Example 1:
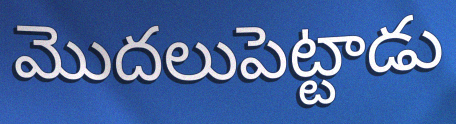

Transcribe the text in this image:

మొదలుపెట్టాడు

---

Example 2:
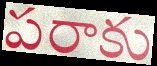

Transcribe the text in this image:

పరాకు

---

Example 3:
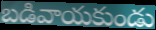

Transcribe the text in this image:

బడివాయకుండు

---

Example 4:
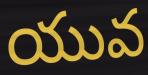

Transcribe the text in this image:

యువ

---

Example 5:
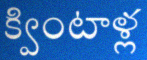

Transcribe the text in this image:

క్వింటాళ్ల